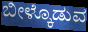
ಬೀಳ್ಕೊಡುವ